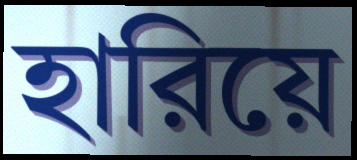
হারিয়ে